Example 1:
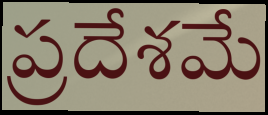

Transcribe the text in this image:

ప్రదేశమే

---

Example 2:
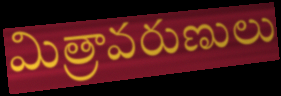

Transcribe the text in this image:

మిత్రావరుణులు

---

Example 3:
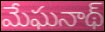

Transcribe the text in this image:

మేఘనాథ్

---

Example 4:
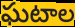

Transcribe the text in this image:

ఘటాల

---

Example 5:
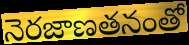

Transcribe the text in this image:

నెరజాణతనంతో